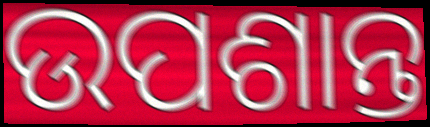
ଉପଶାନ୍ତ